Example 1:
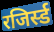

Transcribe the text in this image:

रजिर्स्ड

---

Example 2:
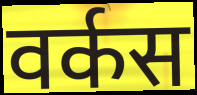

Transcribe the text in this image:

वर्कस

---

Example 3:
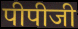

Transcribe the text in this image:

पीपीजी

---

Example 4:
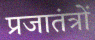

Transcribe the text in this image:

प्रजातंत्रों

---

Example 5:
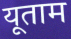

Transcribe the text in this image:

यूताम